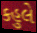
કહુલે